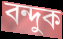
বন্দুক